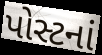
પોસ્ટનાં